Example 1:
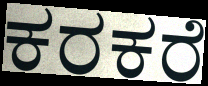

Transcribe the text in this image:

ಕರಕರೆ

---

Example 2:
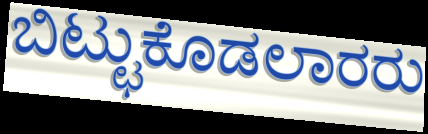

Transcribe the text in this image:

ಬಿಟ್ಟುಕೊಡಲಾರರು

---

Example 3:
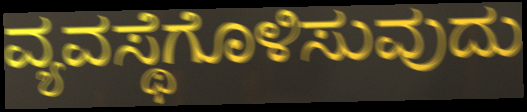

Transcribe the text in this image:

ವ್ಯವಸ್ಥೆಗೊಳಿಸುವುದು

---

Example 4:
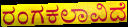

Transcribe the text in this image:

ರಂಗಕಲಾವಿದೆ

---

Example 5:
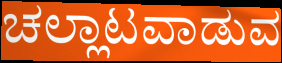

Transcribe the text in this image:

ಚಲ್ಲಾಟವಾಡುವ